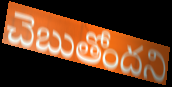
చెబుతోందని